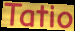
Tatio